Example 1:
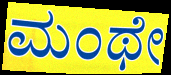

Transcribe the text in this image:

ಮಂಥೇ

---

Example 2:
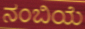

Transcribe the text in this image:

ನಂಬಿಯೆ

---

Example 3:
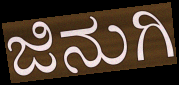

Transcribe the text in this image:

ಜಿನುಗಿ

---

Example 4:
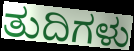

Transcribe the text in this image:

ತುದಿಗಳು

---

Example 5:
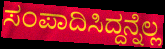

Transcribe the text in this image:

ಸಂಪಾದಿಸಿದ್ದನ್ನೆಲ್ಲ